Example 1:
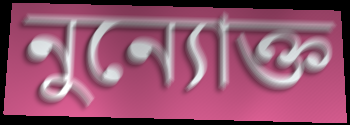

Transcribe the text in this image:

নুন্যোক্ত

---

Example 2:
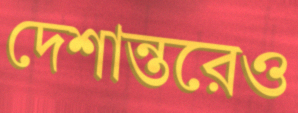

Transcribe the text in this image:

দেশান্তরেও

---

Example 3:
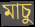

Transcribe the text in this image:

মাচু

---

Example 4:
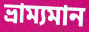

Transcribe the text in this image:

ভ্রাম্যমান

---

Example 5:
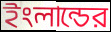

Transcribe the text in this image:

ইংলান্ডের